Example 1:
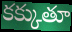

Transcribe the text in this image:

కక్కుతూ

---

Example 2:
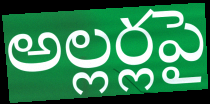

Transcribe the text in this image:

అల్లర్లపై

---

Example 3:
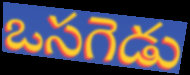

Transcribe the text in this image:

ఒసగెడు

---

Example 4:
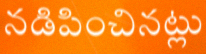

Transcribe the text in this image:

నడిపించినట్లు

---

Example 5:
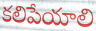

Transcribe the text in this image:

కలిపేయాలి